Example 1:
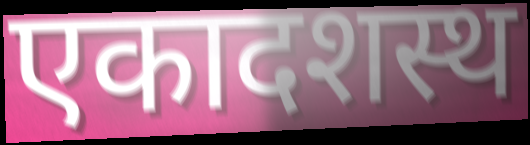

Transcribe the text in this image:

एकादशस्थ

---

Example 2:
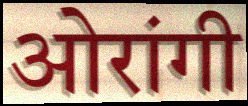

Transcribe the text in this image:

ओरांगी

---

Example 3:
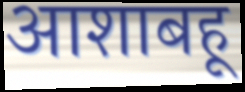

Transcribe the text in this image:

आशाबहू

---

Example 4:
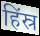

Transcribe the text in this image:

हिंस्र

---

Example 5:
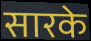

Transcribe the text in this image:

सारके